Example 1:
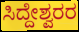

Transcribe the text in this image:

ಸಿದ್ದೇಶ್ವರರ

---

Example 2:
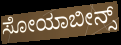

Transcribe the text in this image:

ಸೋಯಾಬೀನ್ಸ್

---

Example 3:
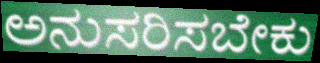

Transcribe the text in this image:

ಅನುಸರಿಸಬೇಕು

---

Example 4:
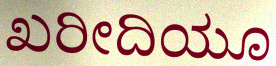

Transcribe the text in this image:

ಖರೀದಿಯೂ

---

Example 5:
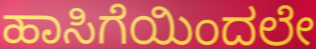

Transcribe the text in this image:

ಹಾಸಿಗೆಯಿಂದಲೇ